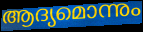
ആദ്യമൊന്നും